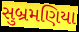
સુબ્રમણિયા